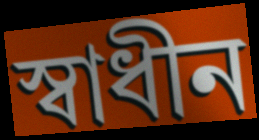
স্বাধীন